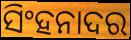
ସିଂହନାଦର